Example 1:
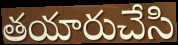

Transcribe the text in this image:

తయారుచేసి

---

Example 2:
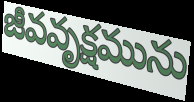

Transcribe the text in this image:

జీవవృక్షమును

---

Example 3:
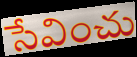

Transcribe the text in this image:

సేవించు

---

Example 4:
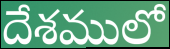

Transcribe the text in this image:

దేశములో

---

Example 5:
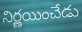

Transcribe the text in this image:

నిర్ణయించేడు